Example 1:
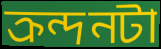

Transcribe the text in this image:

ক্রন্দনটা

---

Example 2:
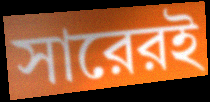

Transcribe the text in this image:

সারেরই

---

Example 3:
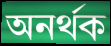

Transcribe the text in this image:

অনর্থক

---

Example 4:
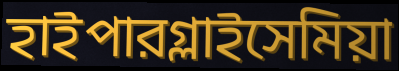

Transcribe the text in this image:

হাইপারগ্লাইসেমিয়া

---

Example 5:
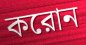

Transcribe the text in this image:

করোন